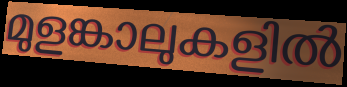
മുളങ്കാലുകളിൽ